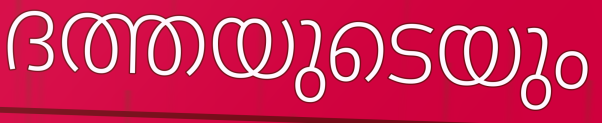
ദത്തയുടെയും